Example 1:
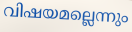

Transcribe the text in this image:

വിഷയമല്ലെന്നും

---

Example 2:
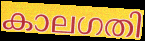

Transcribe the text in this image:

കാലഗതി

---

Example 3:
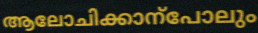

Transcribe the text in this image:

ആലോചിക്കാന്പോലും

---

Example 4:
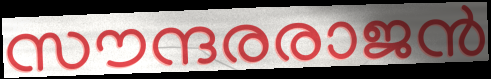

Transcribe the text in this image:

സൗന്ദരരാജൻ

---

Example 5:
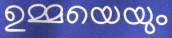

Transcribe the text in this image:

ഉമ്മയെയും